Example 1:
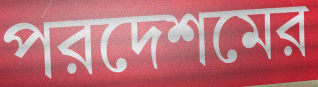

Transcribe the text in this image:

পরদেশমের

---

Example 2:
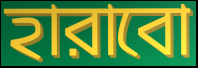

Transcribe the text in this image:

হারাবো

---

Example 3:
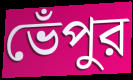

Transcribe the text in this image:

ভেঁপুর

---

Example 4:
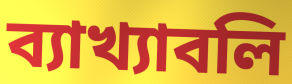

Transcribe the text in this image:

ব্যাখ্যাবলি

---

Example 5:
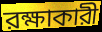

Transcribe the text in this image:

রক্ষাকারী